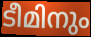
ടീമിനും